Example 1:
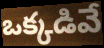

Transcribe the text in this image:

ఒక్కడివే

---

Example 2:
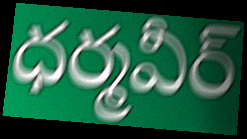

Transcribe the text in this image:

ధర్మవీర్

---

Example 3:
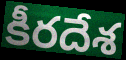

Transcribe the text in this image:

కీరదేశ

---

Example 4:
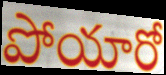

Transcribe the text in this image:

పోయారో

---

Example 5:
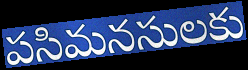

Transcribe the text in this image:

పసిమనసులకు